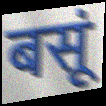
बसूं